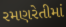
રમણરેતીમાં